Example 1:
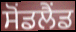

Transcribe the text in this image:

ਸੋਂਡਲੈਂਡ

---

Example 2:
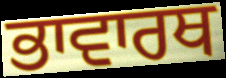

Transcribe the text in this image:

ਭਾਵਾਰਥ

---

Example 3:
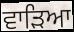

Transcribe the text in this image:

ਵਾੜਿਆ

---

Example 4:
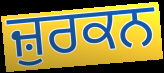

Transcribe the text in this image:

ਜ਼ੁਰਕਨ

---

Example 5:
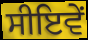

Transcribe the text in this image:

ਸੀਇਵੇਂ